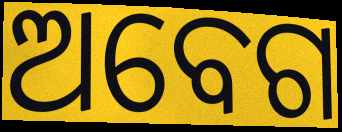
ଅବେଗ